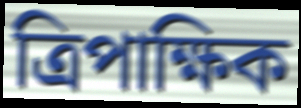
ত্রিপাক্ষিক